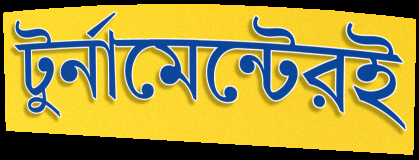
টুর্নামেন্টেরই